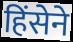
हिंसेने